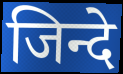
जिन्दे